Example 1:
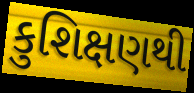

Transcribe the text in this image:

કુશિક્ષણથી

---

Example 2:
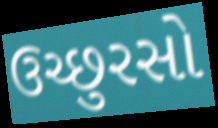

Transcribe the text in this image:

ઉચ્છુરસો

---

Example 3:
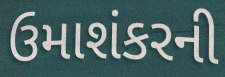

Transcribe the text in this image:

ઉમાશંકરની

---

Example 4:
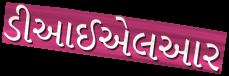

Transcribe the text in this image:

ડીઆઈએલઆર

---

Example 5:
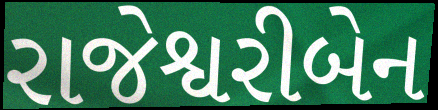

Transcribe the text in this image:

રાજેશ્વરીબેન